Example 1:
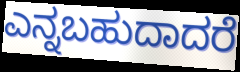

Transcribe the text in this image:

ಎನ್ನಬಹುದಾದರೆ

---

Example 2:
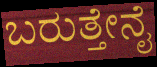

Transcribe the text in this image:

ಬರುತ್ತೇನೈ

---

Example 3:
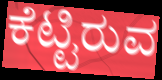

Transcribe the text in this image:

ಕೆಟ್ಟಿರುವ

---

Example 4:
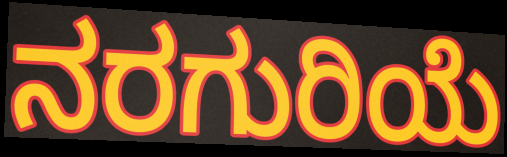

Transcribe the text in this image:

ನರಗುರಿಯೆ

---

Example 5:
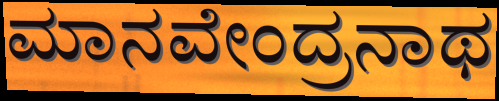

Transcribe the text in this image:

ಮಾನವೇಂದ್ರನಾಥ